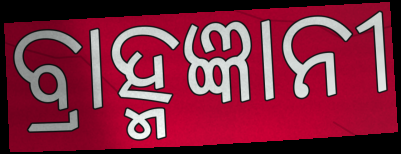
ବ୍ରାହ୍ମଜ୍ଞାନୀ